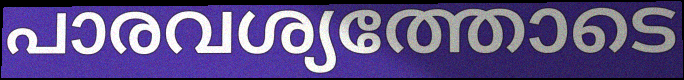
പാരവശ്യത്തോടെ